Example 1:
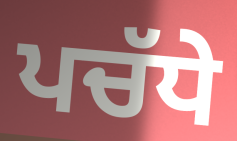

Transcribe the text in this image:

ਪਚੱਧੇ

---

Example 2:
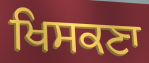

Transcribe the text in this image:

ਖਿਸਕਣਾ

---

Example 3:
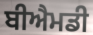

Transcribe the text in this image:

ਬੀਐਮਡੀ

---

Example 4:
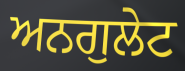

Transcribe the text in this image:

ਅਨਗੁਲੇਟ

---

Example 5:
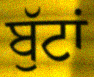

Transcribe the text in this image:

ਬੁੱਟਾਂ